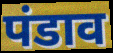
पंडाव